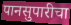
पानसुपारीचा